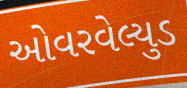
ઓવરવેલ્યુડ